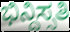
ಭಿನ್ದಿಸ್ಸತಿ